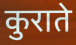
कुराते